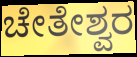
ಚೇತೇಶ್ವರ